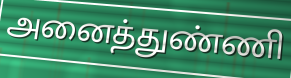
அனைத்துண்ணி